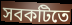
সবকটিতে